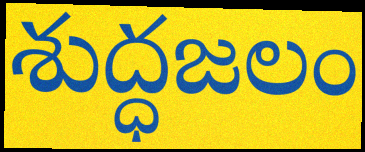
శుద్ధజలం